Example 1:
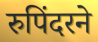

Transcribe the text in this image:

रुपिंदरने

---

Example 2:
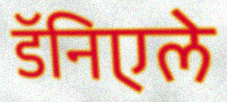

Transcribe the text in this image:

डॅनिएले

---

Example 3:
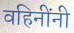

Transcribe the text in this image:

वहिनींनी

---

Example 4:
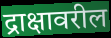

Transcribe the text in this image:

द्राक्षावरील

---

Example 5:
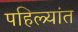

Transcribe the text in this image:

पहिल्यांत